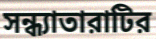
সন্ধ্যাতারাটির